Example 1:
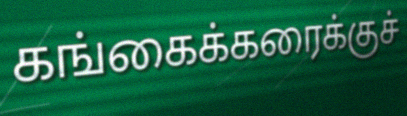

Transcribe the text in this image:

கங்கைக்கரைக்குச்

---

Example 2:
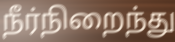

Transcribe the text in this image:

நீர்நிறைந்து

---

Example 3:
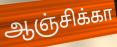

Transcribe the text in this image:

ஆஞ்சிக்கா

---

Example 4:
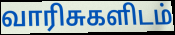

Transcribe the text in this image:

வாரிசுகளிடம்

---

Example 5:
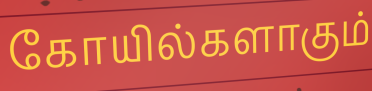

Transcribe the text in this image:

கோயில்களாகும்